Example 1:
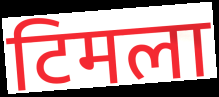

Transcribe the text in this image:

टिमला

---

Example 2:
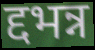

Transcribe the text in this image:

द्दभन्न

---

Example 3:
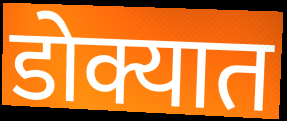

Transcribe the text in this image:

डोक्यात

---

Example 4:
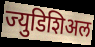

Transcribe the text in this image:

ज्युडिशिअल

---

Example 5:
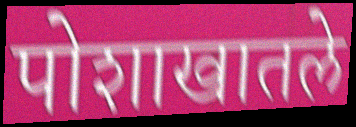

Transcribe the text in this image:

पोशाखातले